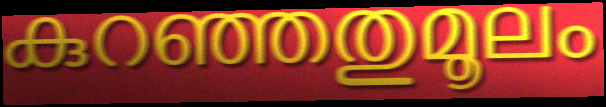
കുറഞ്ഞതുമൂലം